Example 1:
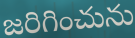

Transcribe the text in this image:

జరిగించును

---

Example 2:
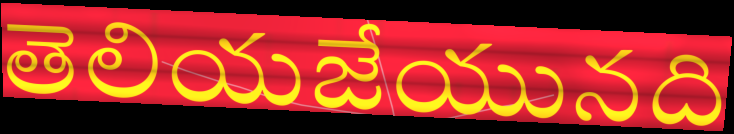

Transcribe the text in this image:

తెలియజేయునది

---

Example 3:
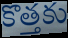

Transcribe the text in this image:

కొత్తకు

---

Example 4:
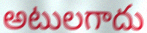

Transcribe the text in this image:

అటులగాదు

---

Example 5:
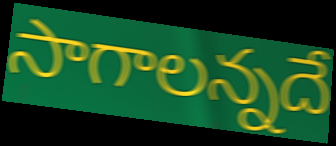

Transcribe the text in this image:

సాగాలన్నదే